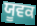
ਯੂਵਕ